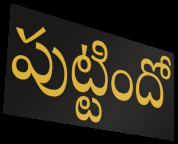
పుట్టిందో